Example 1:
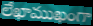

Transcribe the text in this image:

లేఖాముఖంగా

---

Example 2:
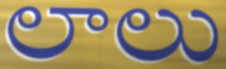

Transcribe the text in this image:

లాలు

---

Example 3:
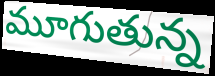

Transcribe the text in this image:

మూగుతున్న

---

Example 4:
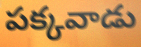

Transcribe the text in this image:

పక్కవాడు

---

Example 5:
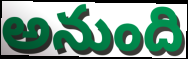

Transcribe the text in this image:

అనుంది